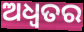
ଅଧ୍ଵତର